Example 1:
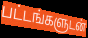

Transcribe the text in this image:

பட்டங்களுடன்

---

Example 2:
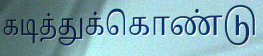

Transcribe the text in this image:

கடித்துக்கொண்டு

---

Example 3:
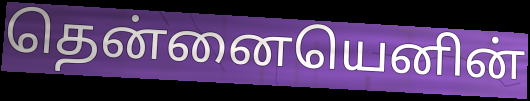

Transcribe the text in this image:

தென்னையெனின்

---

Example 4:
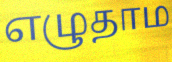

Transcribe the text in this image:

எழுதாம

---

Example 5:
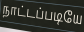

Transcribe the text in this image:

நாட்டப்படியே